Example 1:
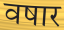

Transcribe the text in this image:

वषार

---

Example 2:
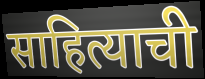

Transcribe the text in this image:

साहित्याची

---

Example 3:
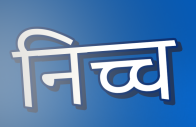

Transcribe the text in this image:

निच्च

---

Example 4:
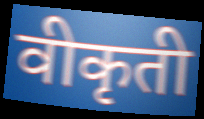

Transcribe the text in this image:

वीकृती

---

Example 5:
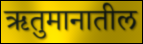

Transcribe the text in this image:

ऋतुमानातील